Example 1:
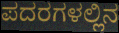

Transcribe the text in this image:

ಪದರಗಳಲ್ಲಿನ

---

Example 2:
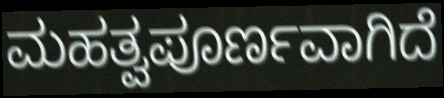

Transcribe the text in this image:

ಮಹತ್ವಪೂರ್ಣವಾಗಿದೆ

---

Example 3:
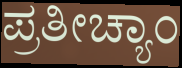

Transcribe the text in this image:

ಪ್ರತೀಚ್ಯಾಂ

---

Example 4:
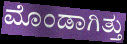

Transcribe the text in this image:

ಮೊಂಡಾಗಿತ್ತು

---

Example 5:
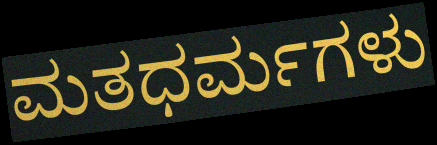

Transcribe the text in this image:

ಮತಧರ್ಮಗಳು